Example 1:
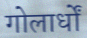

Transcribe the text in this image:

गोलार्धों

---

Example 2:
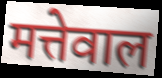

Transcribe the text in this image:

मत्तेवाल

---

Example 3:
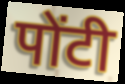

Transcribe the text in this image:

पोंटी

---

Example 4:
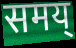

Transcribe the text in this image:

समय्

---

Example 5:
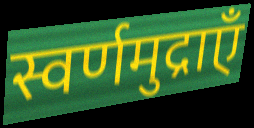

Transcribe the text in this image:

स्वर्णमुद्राएँ